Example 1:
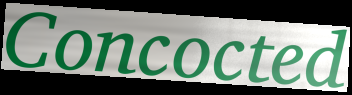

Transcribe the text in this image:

Concocted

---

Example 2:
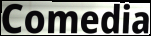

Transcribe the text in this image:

Comedia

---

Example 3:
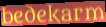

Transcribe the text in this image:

bedekarm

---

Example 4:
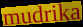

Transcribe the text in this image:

mudrika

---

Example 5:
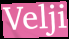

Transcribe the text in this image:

Velji